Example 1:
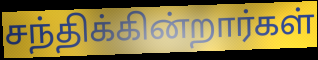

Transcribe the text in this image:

சந்திக்கின்றார்கள்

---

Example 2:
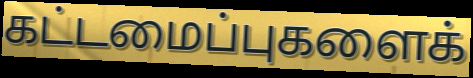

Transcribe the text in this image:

கட்டமைப்புகளைக்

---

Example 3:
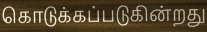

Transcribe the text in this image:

கொடுக்கப்படுகின்றது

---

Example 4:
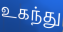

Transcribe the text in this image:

உகந்து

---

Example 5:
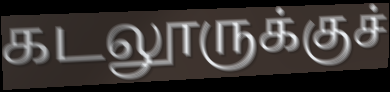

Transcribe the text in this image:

கடலூருக்குச்